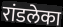
रांडलेका